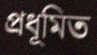
প্রধূমিত